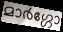
മാർഗ്ഗോ